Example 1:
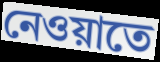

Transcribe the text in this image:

নেওয়াতে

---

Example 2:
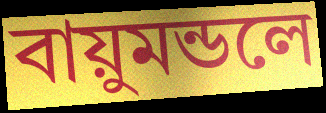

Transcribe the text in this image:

বায়ুমন্ডলে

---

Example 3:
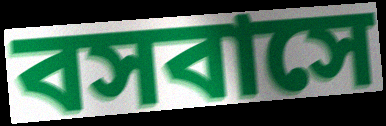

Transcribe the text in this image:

বসবাসে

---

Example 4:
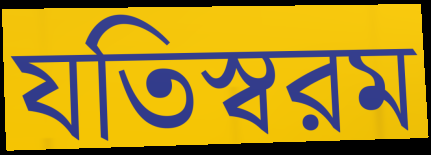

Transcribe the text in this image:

যতিস্বরম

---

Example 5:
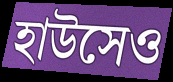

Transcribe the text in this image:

হাউসেও